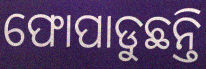
ଫୋପାଡୁଛନ୍ତି